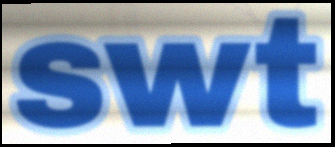
swt